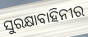
ସୁରକ୍ଷାବାହିନୀର